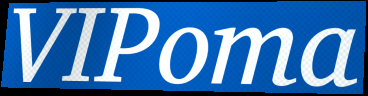
VIPoma